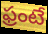
ఫ్రంటే